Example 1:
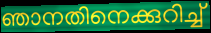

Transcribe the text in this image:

ഞാനതിനെക്കുറിച്ച്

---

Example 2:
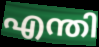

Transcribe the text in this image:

എന്തി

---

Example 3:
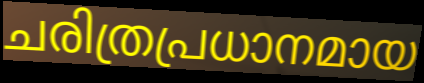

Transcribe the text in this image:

ചരിത്രപ്രധാനമായ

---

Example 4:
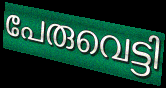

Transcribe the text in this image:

പേരുവെട്ടി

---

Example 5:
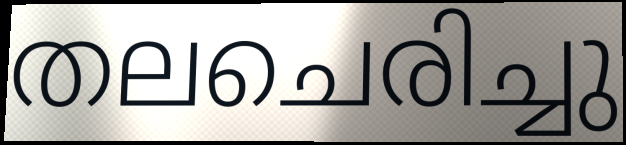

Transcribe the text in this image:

തലചെരിച്ചു